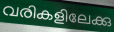
വരികളിലേക്കു